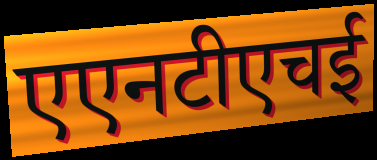
एएनटीएचई